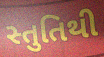
સ્તુતિથી